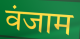
वंजाम